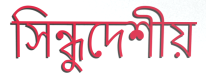
সিন্ধুদেশীয়